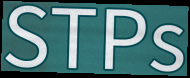
STPs